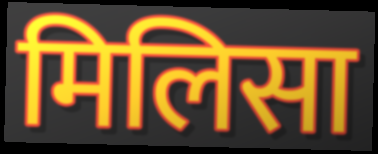
मिलिसा